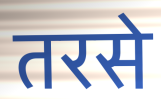
तरसे